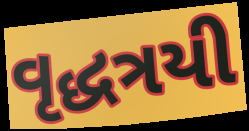
વૃદ્ધત્રયી